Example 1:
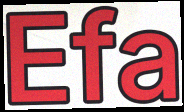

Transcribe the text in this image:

Efa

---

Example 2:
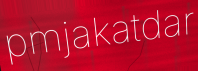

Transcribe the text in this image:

pmjakatdar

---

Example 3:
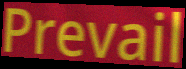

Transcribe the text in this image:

Prevail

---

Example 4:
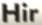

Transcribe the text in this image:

Hir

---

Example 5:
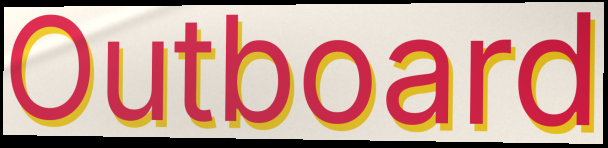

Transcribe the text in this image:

Outboard